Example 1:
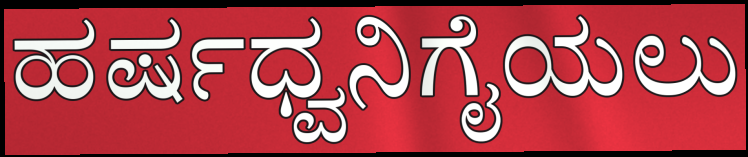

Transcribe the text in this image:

ಹರ್ಷಧ್ವನಿಗೈಯಲು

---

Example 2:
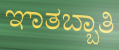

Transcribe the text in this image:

ಞಾತಬ್ಬಾತಿ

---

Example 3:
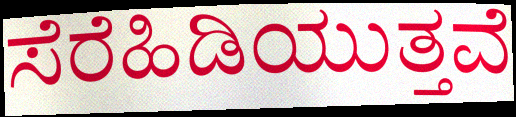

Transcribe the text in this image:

ಸೆರೆಹಿಡಿಯುತ್ತವೆ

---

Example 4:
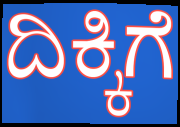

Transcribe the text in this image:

ದಿಕ್ಕಿಗೆ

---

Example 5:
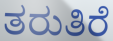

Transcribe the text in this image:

ತರುತಿರೆ